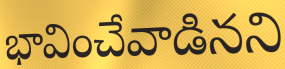
భావించేవాడినని